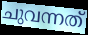
ചുവന്നത്